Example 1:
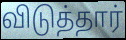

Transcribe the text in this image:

விடுத்தார்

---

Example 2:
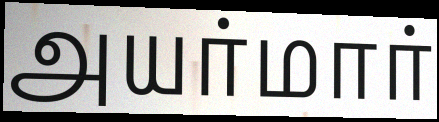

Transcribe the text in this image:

அயர்மார்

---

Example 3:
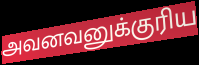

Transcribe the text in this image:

அவனவனுக்குரிய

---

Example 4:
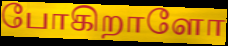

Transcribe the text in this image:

போகிறாளோ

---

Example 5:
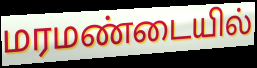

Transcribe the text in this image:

மரமண்டையில்